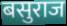
बसुराज